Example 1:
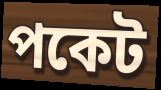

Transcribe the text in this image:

পকেট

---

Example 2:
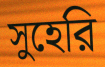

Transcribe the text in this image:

সুহেরি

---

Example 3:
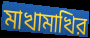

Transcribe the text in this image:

মাখামাখির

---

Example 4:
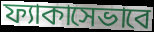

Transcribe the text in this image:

ফ্যাকাসেভাবে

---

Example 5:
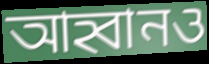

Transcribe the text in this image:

আহ্বানও